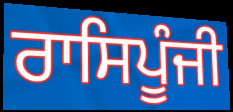
ਰਾਸਿਪੂੰਜੀ